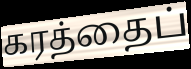
கரத்தைப்